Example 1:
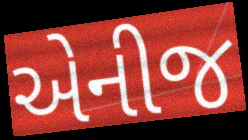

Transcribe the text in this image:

એનીજ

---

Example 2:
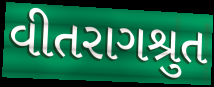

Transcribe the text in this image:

વીતરાગશ્રુત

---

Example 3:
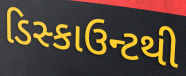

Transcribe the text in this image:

ડિસ્કાઉન્ટથી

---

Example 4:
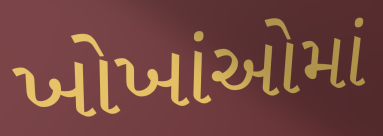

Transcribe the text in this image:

ખોખાંઓમાં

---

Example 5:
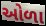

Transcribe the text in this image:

ઓળા